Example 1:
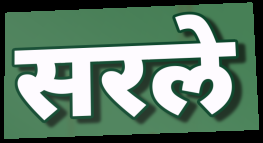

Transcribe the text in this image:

सरले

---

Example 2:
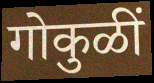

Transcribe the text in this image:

गोकुळीं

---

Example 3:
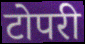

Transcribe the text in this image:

टोपरी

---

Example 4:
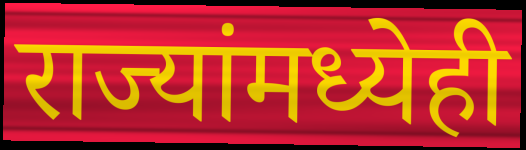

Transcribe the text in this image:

राज्यांमध्येही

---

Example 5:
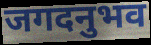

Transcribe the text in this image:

जगदनुभव